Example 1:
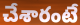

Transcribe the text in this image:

చేశారంటే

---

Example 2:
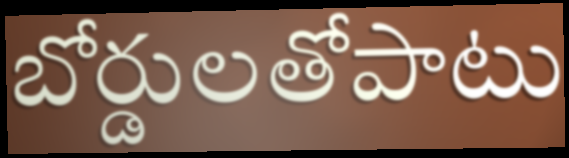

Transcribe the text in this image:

బోర్డులతోపాటు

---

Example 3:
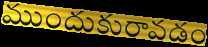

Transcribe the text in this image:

ముందుకురావడం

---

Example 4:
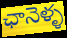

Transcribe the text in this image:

ఛానెళ్ళ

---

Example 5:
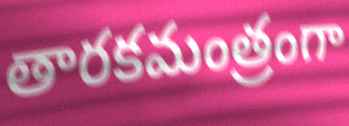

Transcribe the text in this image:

తారకమంత్రంగా